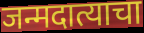
जन्मदात्याचा